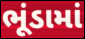
ભૂંડામાં